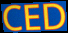
CED